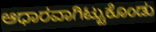
ಆಧಾರವಾಗಿಟ್ಟುಕೊಂಡು